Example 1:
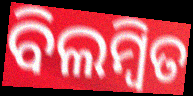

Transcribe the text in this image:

ବିଲମ୍ବିତ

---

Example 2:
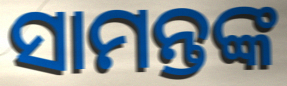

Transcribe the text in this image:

ସାମନ୍ତଙ୍କ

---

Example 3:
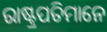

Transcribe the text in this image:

ରାଷ୍ଟ୍ରପତିମାନେ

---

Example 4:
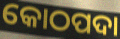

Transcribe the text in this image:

କୋଠପଦା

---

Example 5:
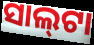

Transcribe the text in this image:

ସାଲ୍‌ଟା